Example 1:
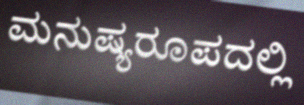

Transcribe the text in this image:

ಮನುಷ್ಯರೂಪದಲ್ಲಿ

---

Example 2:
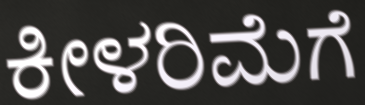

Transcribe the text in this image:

ಕೀಳರಿಮೆಗೆ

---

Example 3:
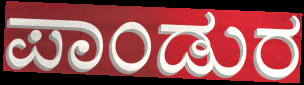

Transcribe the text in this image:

ಪಾಂಡುರ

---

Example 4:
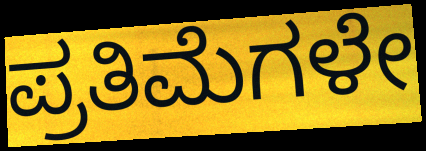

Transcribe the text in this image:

ಪ್ರತಿಮೆಗಳೇ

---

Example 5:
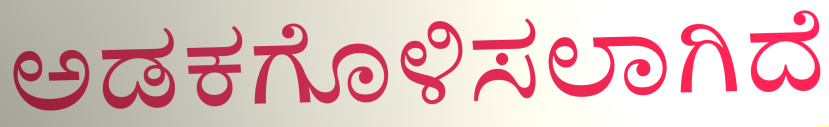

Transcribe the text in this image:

ಅಡಕಗೊಳಿಸಲಾಗಿದೆ